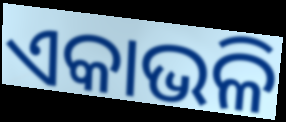
ଏକାଭଳି